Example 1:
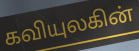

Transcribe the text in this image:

கவியுலகின்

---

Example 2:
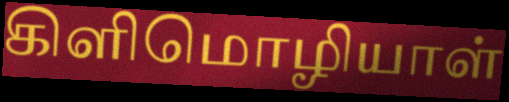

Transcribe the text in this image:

கிளிமொழியாள்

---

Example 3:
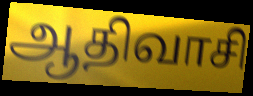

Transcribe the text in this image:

ஆதிவாசி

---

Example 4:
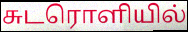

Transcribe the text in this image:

சுடரொளியில்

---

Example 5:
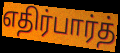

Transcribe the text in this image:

எதிர்பார்த்